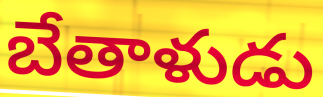
బేతాళుడు